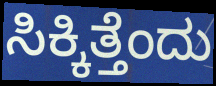
ಸಿಕ್ಕಿತ್ತೆಂದು